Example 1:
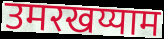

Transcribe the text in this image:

उमरखय्याम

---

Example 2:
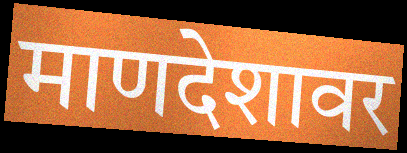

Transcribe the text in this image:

माणदेशावर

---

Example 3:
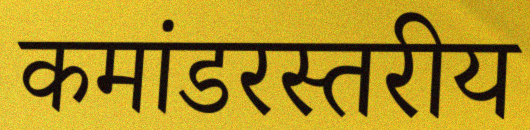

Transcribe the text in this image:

कमांडरस्तरीय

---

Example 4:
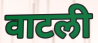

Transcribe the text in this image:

वाटली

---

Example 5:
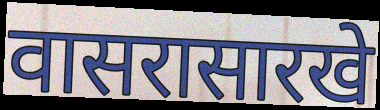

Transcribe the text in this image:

वासरासारखे